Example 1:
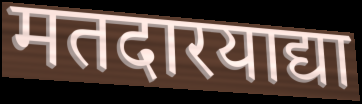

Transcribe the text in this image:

मतदारयाद्या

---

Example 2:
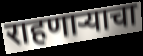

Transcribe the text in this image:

राहणाऱ्याचा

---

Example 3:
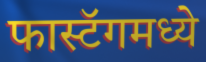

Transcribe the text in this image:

फास्टॅगमध्ये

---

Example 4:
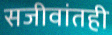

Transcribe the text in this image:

सजीवांतही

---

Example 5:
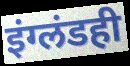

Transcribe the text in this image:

इंग्लंडही